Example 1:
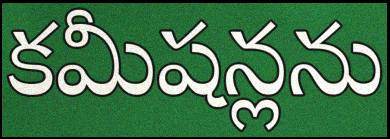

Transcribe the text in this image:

కమీషన్లను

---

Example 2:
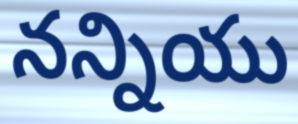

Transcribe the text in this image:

నన్నియు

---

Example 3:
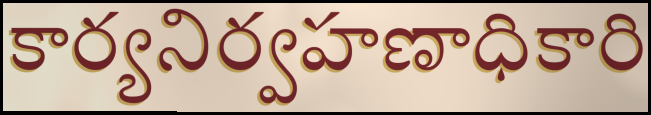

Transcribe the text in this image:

కార్యనిర్వహణాధికారి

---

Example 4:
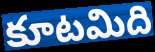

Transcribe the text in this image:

కూటమిది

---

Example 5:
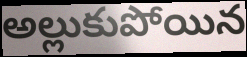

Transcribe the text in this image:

అల్లుకుపోయిన